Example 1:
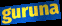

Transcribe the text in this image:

guruna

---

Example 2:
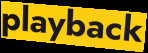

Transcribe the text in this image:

playback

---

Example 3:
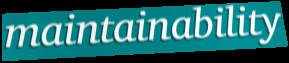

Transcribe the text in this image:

maintainability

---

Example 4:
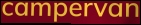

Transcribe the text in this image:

campervan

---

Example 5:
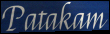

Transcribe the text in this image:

Patakam